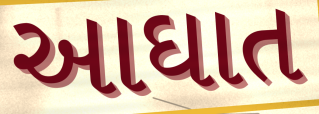
આઘાત